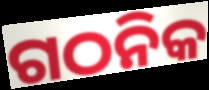
ଗଠନିକ